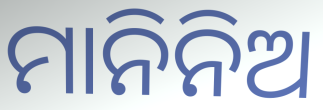
ମାନିନିଅ